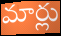
మార్లు